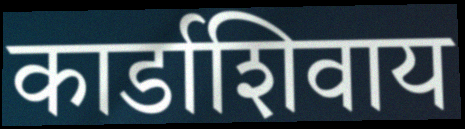
कार्डाशिवाय